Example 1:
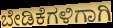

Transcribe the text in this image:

ಬೇಡಿಕೆಗಳಿಗಾಗಿ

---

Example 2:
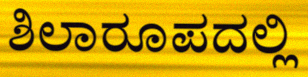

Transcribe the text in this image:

ಶಿಲಾರೂಪದಲ್ಲಿ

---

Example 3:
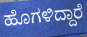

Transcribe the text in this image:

ಹೊಗಳಿದ್ದಾರೆ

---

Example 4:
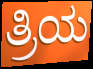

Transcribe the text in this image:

ತ್ರಿಯ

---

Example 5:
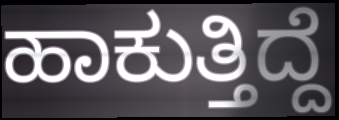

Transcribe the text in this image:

ಹಾಕುತ್ತಿದ್ದೆ